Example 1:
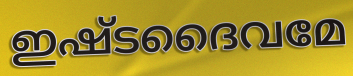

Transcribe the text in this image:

ഇഷ്ടദൈവമേ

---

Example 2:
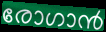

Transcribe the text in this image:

രോഗാൻ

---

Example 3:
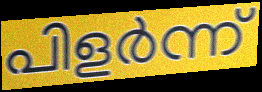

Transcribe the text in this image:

പിളർന്ന്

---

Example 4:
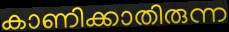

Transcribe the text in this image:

കാണിക്കാതിരുന്ന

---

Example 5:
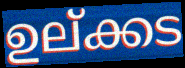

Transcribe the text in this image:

ഉല്ക്കട